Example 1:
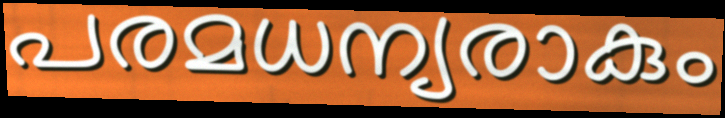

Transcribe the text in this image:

പരമധന്യരാകും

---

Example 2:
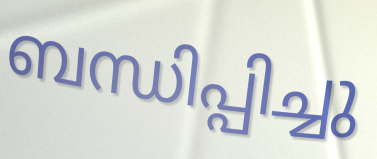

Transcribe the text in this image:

ബന്ധിപ്പിച്ചു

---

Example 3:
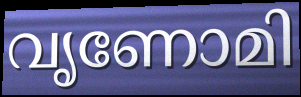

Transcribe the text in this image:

വൃണോമി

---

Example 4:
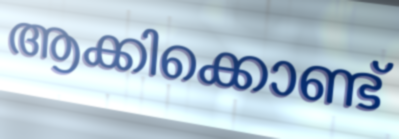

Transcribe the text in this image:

ആക്കിക്കൊണ്ട്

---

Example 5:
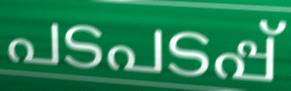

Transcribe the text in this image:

പടപടപ്പ്